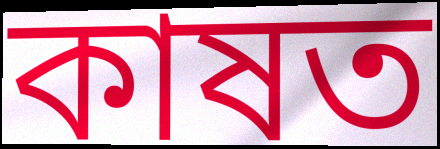
কাষত